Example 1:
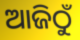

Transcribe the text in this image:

ଆଜିଠୁଁ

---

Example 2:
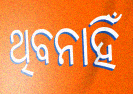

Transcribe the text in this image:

ଥିବନାହିଁ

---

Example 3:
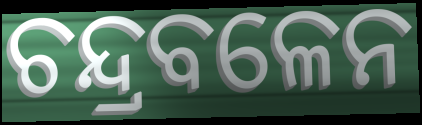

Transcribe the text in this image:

ଚନ୍ଦ୍ରବଳେନ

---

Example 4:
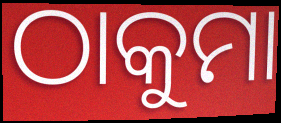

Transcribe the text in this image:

ଠାକୁମା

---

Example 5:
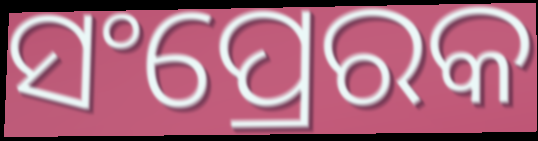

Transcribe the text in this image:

ସଂପ୍ରେରକ